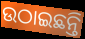
ଉଠାଇଛନ୍ତି